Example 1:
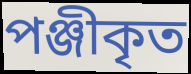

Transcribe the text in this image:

পঞ্জীকৃত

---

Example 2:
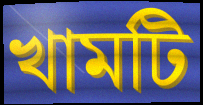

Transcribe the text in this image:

খামটি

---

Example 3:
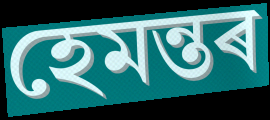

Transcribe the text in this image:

হেমন্তৰ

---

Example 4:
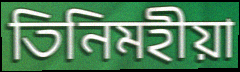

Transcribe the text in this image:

তিনিমহীয়া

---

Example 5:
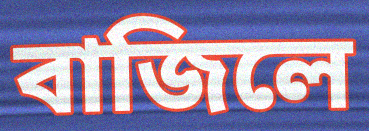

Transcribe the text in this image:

বাজিলে